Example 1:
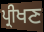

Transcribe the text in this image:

ਪ੍ਰੀਖਣ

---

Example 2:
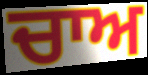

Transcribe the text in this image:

ਚਾਅ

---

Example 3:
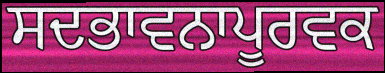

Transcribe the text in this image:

ਸਦਭਾਵਨਾਪੂਰਵਕ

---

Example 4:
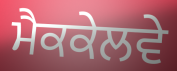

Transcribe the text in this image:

ਮੈਕਕੇਲਵੇ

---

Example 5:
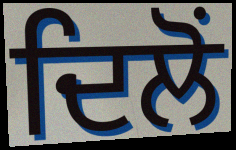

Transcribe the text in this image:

ਦਿਲੋਂ